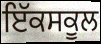
ਇੱਕਸਕੂਲ